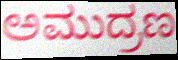
ಅಮುದ್ರಣ